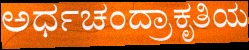
ಅರ್ಧಚಂದ್ರಾಕೃತಿಯ